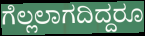
ಗೆಲ್ಲಲಾಗದಿದ್ದರೂ